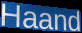
Haand